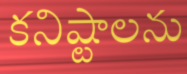
కనిష్టాలను